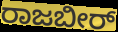
ರಾಜಬೀರ್